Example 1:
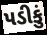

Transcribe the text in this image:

પડીકું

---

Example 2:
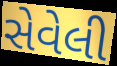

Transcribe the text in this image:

સેવેલી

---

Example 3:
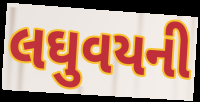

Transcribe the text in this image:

લઘુવયની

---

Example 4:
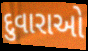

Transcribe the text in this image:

દુવારાઓ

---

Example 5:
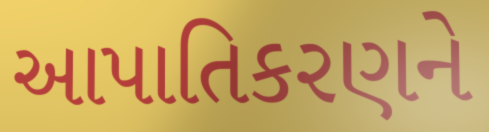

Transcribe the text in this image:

આપાતિકરણને